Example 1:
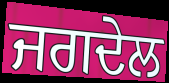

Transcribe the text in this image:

ਜਗਦੇਲ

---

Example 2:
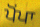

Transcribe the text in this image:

ਪੋਂਪਾ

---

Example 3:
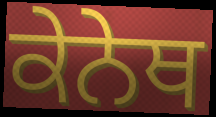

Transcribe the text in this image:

ਕੇਨੇਥ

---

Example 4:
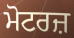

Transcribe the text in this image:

ਮੋਟਰਜ਼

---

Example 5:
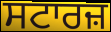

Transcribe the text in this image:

ਸਟਾਰਜ਼